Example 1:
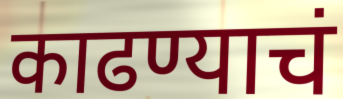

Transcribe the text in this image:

काढण्याचं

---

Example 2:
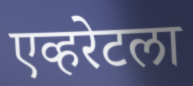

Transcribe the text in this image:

एव्हरेटला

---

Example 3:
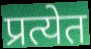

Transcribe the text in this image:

प्रत्येत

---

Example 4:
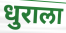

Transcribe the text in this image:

धुराला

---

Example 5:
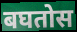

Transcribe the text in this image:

बघतोस